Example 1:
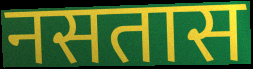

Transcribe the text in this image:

नसतास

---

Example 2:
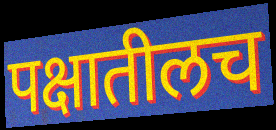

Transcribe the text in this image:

पक्षातीलच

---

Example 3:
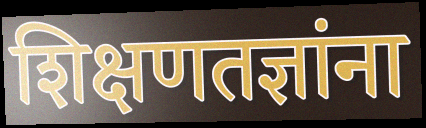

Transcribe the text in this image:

शिक्षणतज्ञांना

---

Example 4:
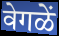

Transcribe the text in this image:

वेगळें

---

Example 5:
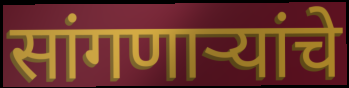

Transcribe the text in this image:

सांगणार्‍यांचे